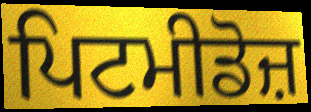
ਪਿਟਮੀਡੋਜ਼